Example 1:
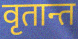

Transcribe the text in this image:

वृतान्त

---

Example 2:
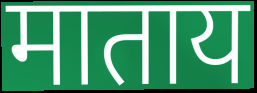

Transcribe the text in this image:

माताय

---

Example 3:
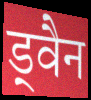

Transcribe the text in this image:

ड्वैन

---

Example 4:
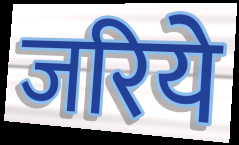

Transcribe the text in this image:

जरिये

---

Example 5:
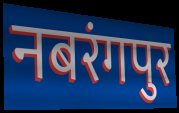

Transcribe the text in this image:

नबरंगपुर